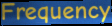
Frequency